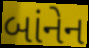
બાંનેન